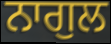
ਨਾਗੁਲ